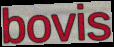
bovis